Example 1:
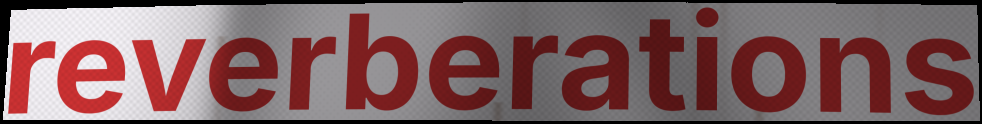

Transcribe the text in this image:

reverberations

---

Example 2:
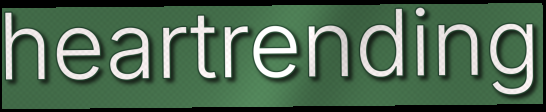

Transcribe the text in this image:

heartrending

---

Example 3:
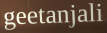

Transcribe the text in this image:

geetanjali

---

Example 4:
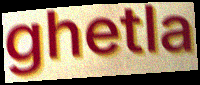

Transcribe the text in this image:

ghetla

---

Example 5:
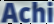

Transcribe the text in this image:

Achi